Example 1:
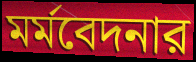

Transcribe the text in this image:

মর্মবেদনার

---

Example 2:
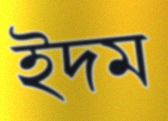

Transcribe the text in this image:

ইদম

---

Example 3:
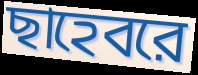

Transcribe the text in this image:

ছাহেবরে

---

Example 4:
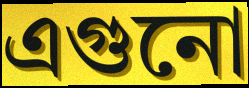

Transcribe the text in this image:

এগুনো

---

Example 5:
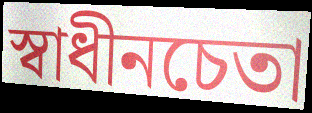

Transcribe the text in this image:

স্বাধীনচেতা